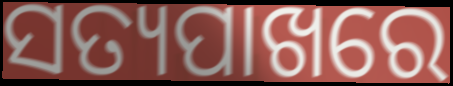
ସତ୍ୟପାଖରେ